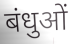
बंधुओं